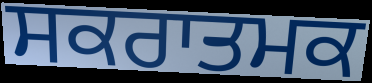
ਸਕਰਾਤਮਕ